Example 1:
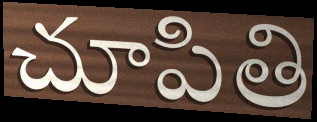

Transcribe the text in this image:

చూపితి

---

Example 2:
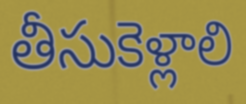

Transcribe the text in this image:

తీసుకెళ్లాలి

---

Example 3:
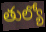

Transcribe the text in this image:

తుల్యో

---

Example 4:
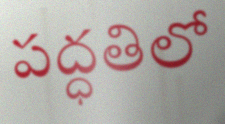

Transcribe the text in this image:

పద్ధతిలో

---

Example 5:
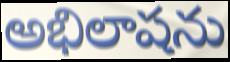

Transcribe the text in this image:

అభిలాషను